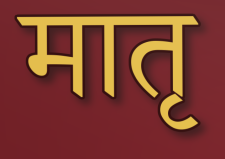
मातृ